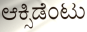
ಆಕ್ಸಿಡೆಂಟು